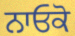
ਨਾਓਕੋ